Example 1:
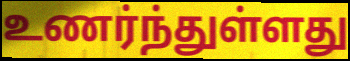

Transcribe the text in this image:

உணர்ந்துள்ளது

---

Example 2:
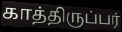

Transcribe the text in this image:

காத்திருப்பர்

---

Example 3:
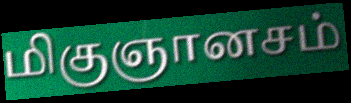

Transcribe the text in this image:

மிகுஞானசம்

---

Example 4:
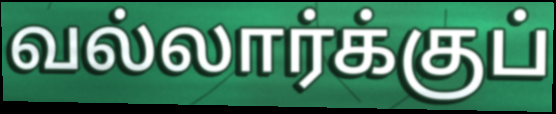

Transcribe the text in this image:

வல்லார்க்குப்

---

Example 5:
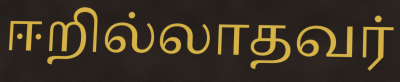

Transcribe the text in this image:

ஈறில்லாதவர்